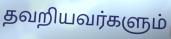
தவறியவர்களும்